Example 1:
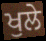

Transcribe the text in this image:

ਖੁਲੇ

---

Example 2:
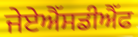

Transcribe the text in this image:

ਜੇਏਐੱਸਡੀਐੱਫ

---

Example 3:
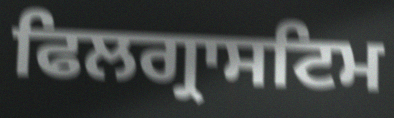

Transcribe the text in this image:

ਫਿਲਗ੍ਰਾਸਟਿਮ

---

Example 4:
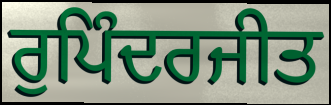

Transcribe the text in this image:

ਰੁਪਿੰਦਰਜੀਤ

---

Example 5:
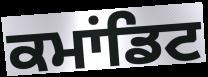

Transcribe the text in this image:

ਕਮਾਂਡਿਟ